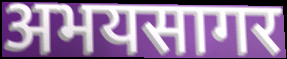
अभयसागर